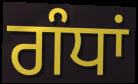
ਗੰਧਾਂ